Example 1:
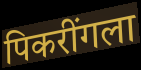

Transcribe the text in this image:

पिकरींगला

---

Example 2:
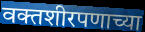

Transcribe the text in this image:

वक्तशीरपणाच्या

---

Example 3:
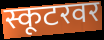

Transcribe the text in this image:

स्कूटरवर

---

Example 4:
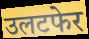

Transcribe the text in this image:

उलटफेर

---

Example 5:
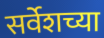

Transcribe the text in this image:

सर्वेशच्या